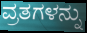
ವ್ರತಗಳನ್ನು